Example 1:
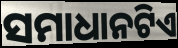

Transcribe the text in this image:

ସମାଧାନଟିଏ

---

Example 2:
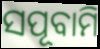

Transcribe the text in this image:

ସପୂବାମି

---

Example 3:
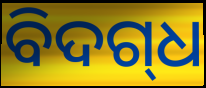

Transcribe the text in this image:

ବିଦଗ୍‍ଧ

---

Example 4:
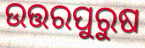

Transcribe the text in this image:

ଉତ୍ତରପୁରୁଷ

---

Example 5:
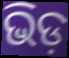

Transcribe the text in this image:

ଭିଡ଼